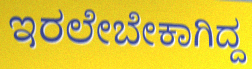
ಇರಲೇಬೇಕಾಗಿದ್ದ